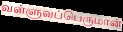
வள்ளுவப்பெருமான்